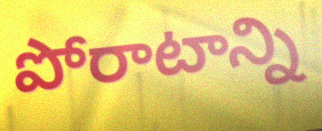
పోరాటాన్ని